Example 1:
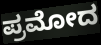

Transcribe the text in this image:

ಪ್ರಮೋದ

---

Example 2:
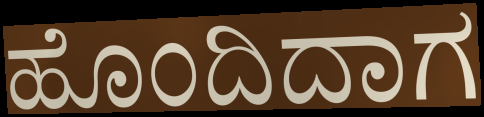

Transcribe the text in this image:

ಹೊಂದಿದಾಗ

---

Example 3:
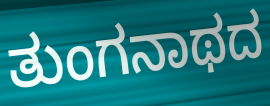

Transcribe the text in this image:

ತುಂಗನಾಥದ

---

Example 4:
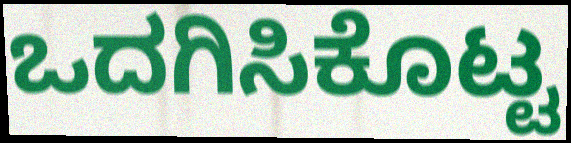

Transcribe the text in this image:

ಒದಗಿಸಿಕೊಟ್ಟ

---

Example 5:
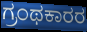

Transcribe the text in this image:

ಗ್ರಂಥಕಾರರ